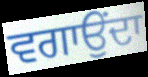
ਵਗਾਉਂਦਾ